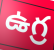
ఉగ్ర